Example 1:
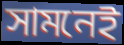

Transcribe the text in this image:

সামনেই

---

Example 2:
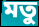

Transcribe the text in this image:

মতু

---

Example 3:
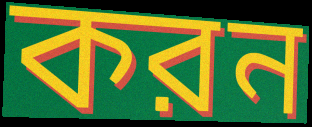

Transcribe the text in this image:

করন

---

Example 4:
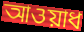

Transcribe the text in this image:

আওয়াধ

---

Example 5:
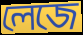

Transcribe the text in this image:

লেজে